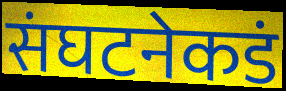
संघटनेकडं